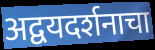
अद्वयदर्शनाचा